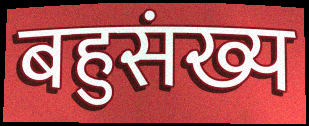
बहुसंख्य